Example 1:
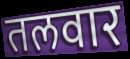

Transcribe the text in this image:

तलवार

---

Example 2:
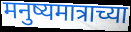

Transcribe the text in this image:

मनुष्यमात्राच्या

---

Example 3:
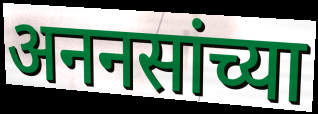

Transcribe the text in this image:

अननसांच्या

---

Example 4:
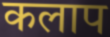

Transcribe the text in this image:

कलाप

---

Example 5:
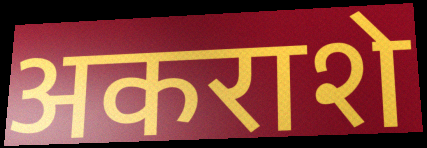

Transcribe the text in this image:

अकराशे